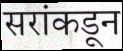
सरांकडून